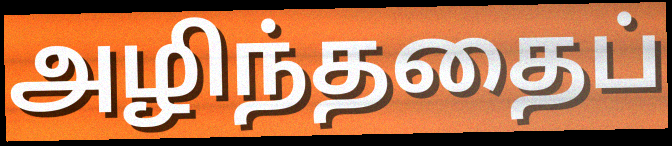
அழிந்ததைப்